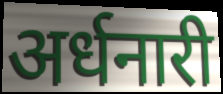
अर्धनारी